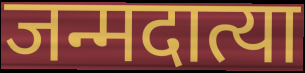
जन्मदात्या